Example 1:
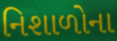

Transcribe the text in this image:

નિશાળોના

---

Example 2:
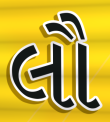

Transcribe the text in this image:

લૌ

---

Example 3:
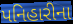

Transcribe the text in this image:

પનિહારીના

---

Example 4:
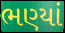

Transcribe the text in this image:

ભણ્યાં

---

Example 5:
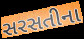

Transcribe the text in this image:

સરસતીના